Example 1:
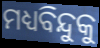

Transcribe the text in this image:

ମଧ୍ୟବିନ୍ଦୁକୁ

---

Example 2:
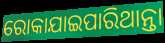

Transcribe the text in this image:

ରୋକାଯାଇପାରିଥାନ୍ତା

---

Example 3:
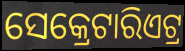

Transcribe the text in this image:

ସେକ୍ରେଟାରିଏଟ୍ର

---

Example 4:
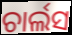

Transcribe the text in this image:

ଚାର୍ଲସ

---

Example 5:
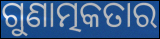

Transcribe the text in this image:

ଗୁଣାତ୍ମକତାର